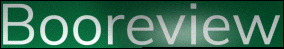
Booreview